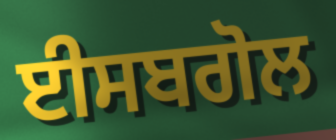
ਈਸਬਗੋਲ